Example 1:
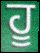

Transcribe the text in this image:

ਹੂ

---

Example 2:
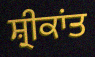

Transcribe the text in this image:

ਸ਼੍ਰੀਕਾਂਤ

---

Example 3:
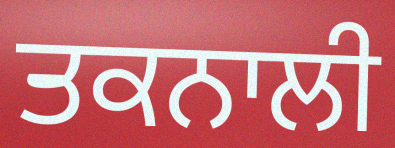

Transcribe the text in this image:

ਤਕਨਾਲੀ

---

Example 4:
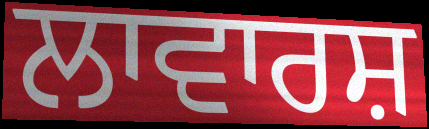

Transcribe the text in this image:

ਲਾਵਾਰਸ਼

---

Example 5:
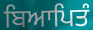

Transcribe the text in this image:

ਬਿਆਪਿਤੰ